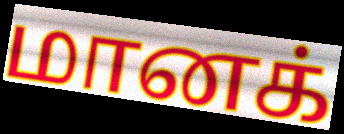
மானக்